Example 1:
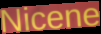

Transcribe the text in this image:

Nicene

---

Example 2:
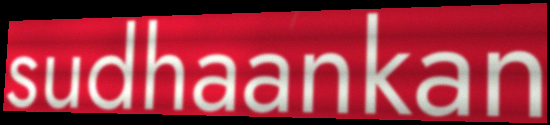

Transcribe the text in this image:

sudhaankan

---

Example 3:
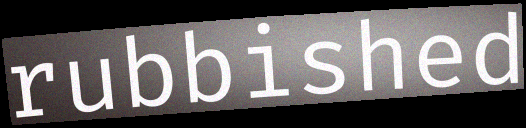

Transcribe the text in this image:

rubbished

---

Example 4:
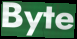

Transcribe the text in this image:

Byte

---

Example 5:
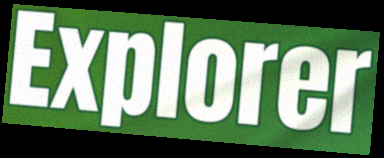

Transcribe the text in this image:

Explorer